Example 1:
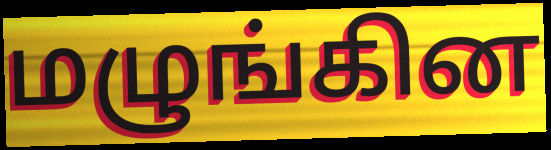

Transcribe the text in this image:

மழுங்கின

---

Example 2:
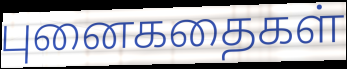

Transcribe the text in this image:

புனைகதைகள்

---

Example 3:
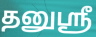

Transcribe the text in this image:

தனுஸ்ரீ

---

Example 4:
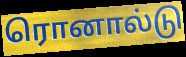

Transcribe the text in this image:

ரொனால்டு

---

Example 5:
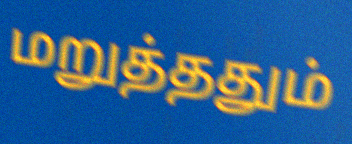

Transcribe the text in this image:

மறுத்ததும்